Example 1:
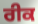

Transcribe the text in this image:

ਰੀਕ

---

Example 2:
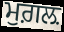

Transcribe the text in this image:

ਮੁਗ਼ਲ਼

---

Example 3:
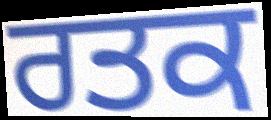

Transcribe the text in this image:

ਰਤਕ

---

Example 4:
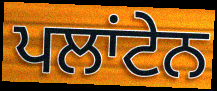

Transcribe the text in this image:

ਪਲਾਂਟੇਨ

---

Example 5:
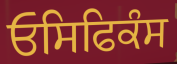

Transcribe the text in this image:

ਓਸਿਫਿਕੰਸ